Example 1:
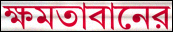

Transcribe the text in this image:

ক্ষমতাবানের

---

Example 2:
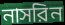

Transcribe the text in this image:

নাসরিন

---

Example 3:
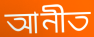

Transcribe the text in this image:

আনীত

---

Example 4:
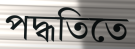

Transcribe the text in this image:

পদ্ধতিতে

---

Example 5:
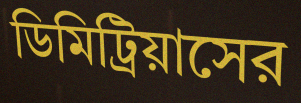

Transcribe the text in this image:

ডিমিট্রিয়াসের